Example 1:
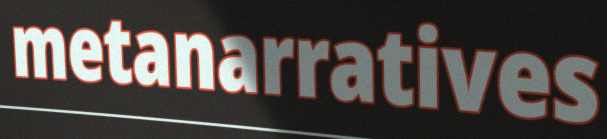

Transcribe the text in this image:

metanarratives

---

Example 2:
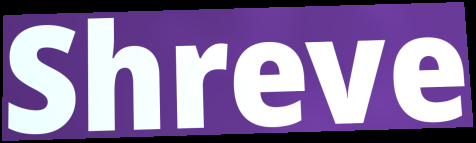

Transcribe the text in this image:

Shreve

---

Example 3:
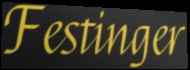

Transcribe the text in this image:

Festinger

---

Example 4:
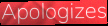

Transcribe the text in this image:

Apologizes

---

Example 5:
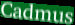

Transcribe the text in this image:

Cadmus